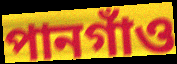
পানগাঁও